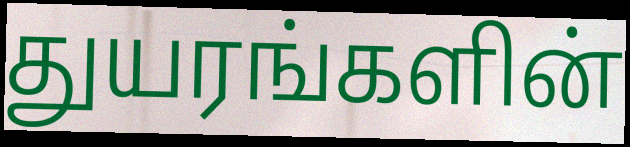
துயரங்களின்